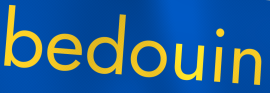
bedouin